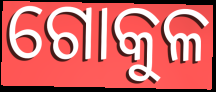
ଗୋକୁଳ